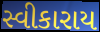
સ્વીકારાય